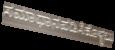
ಸಮಾಧಾನಪಡಿಸಿಕೊಳ್ಳಲು